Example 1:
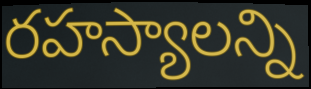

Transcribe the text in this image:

రహస్యాలన్ని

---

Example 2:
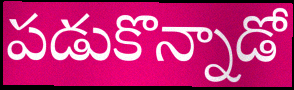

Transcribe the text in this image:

పడుకొన్నాడో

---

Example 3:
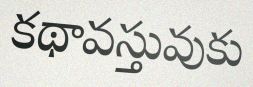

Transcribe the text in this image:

కథావస్తువుకు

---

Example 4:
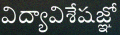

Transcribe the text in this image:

విద్యావిశేషజ్ఞో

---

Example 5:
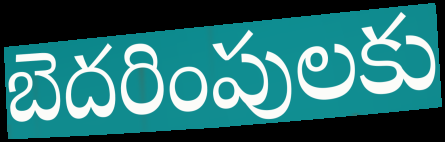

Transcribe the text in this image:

బెదరింపులకు